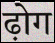
ढ़ोग